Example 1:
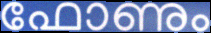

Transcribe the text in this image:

ഫോണും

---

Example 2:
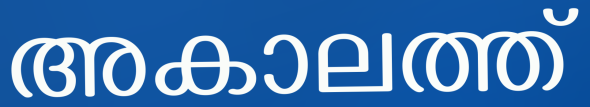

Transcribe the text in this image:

അകാലത്ത്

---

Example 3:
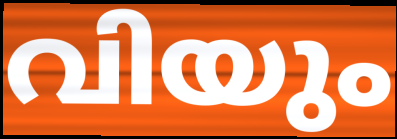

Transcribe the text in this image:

വിയും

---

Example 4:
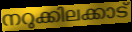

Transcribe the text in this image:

നറുക്കിലക്കാട്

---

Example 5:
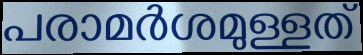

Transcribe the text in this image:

പരാമർശമുള്ളത്